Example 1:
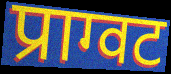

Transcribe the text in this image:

प्राग्वट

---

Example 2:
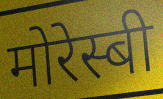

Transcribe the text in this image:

मोरेस्बी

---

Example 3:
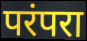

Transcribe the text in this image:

परंपरा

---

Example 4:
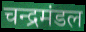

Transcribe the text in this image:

चन्द्रमंडल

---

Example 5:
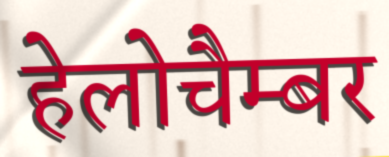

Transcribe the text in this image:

हेलोचैम्बर